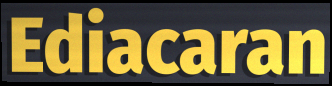
Ediacaran